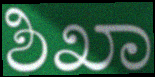
ಶಿಖಾ